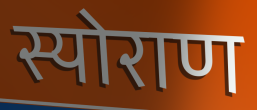
स्योराण